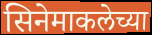
सिनेमाकलेच्या